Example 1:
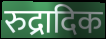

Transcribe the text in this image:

रुद्रादिक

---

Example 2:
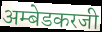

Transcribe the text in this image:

अम्बेडकरजी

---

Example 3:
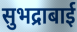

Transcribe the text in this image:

सुभद्राबाई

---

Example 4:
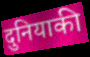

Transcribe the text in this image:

दुनियाकी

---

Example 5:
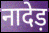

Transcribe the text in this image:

नादेड़